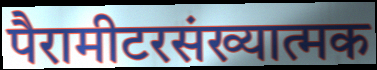
पैरामीटरसंख्यात्मक